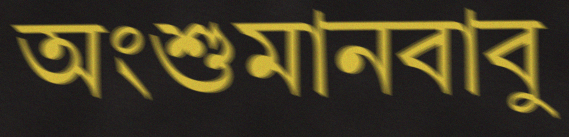
অংশুমানবাবু